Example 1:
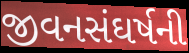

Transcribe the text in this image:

જીવનસંઘર્ષની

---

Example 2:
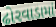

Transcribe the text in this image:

ઢોરવાડામાં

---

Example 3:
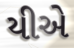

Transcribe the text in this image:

યીએ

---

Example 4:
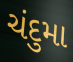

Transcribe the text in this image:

ચંદુમા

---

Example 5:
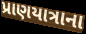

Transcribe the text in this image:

પ્રાણયાત્રાના